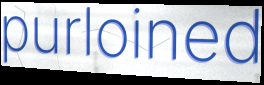
purloined